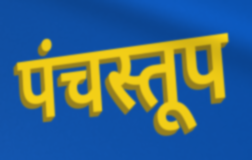
पंचस्तूप